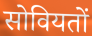
सोवियतों